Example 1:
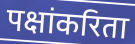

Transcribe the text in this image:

पक्षांकरिता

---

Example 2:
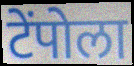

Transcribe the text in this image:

टेंपोला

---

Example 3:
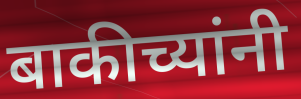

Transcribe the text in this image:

बाकीच्यांनी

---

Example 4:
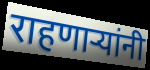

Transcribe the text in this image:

राहणार्‍यांनी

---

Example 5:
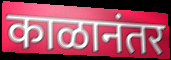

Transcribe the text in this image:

काळानंतर